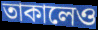
তাকালেও